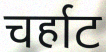
चर्हाट